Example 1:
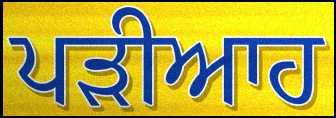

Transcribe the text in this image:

ਪੜੀਆਹ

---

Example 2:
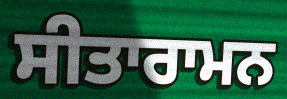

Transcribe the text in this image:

ਸੀਤਾਰਾਮਨ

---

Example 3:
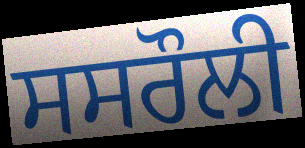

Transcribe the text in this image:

ਸਸਰੌਲੀ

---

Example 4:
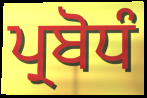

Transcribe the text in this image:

ਪ੍ਰਬੋਧੰ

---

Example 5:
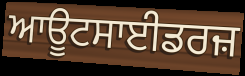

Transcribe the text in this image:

ਆਊਟਸਾਈਡਰਜ਼